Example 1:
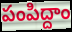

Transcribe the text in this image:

పంపిద్దాం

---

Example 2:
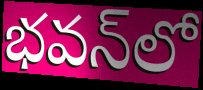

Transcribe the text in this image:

భవన్‌లో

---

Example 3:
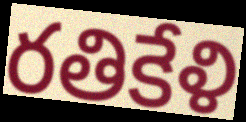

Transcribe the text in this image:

రతికేళి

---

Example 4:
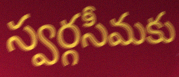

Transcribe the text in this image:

స్వర్గసీమకు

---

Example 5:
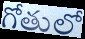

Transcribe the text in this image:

గోతులో